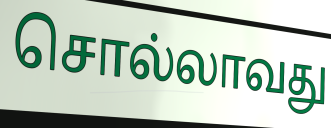
சொல்லாவது